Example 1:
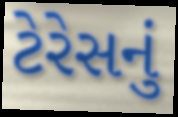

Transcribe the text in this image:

ટેરેસનું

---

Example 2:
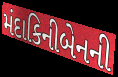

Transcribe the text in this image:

મંદાકિનીબેનની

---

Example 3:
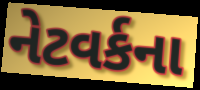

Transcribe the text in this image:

નેટવર્કના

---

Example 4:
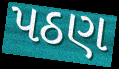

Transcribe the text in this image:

પઠણ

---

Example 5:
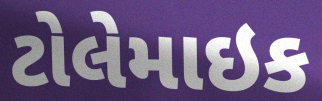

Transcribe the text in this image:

ટોલેમાઇક